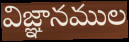
విజ్ఞానముల